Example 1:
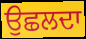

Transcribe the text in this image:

ਉਛਲਦਾ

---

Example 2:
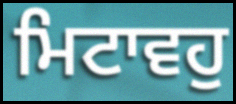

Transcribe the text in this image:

ਮਿਟਾਵਹੁ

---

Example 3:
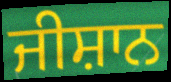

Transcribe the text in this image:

ਜੀਸ਼ਾਨ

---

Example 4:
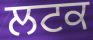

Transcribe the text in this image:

ਲਟਕ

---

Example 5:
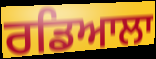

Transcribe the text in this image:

ਰਡਿਆਲਾ